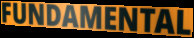
FUNDAMENTAL